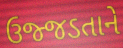
ઉજ્જડતાને